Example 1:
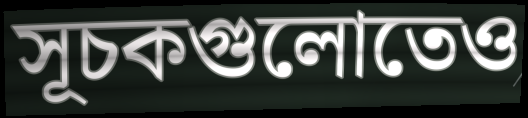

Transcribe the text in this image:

সূচকগুলোতেও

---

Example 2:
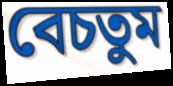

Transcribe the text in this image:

বেচতুম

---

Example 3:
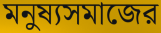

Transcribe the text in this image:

মনুষ্যসমাজের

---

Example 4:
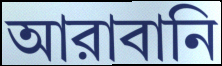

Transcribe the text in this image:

আরাবানি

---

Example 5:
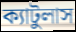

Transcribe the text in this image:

ক্যাটুলাস